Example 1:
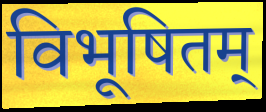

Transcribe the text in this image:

विभूषितम्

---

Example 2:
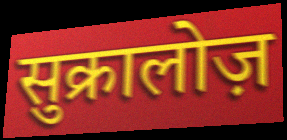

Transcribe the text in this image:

सुक्रालोज़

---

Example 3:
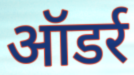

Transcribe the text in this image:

ऑडर्र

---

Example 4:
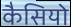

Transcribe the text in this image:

कैसियो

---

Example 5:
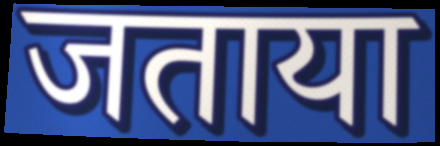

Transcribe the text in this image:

जताया